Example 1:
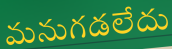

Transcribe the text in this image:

మనుగడలేదు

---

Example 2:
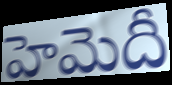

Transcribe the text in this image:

హెమెదీ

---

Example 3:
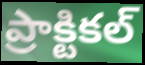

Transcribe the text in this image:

ప్రాక్టికల్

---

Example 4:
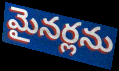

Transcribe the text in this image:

మైనర్లను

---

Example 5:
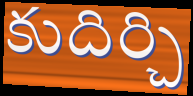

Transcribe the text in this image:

కుదిర్చి